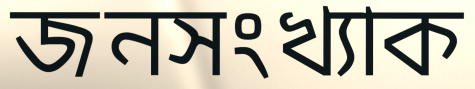
জনসংখ্যাক